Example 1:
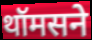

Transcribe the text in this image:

थॉमसने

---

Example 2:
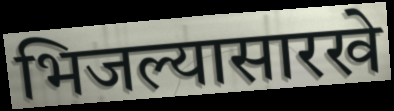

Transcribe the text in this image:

भिजल्यासारखे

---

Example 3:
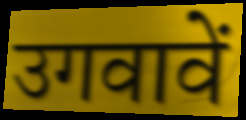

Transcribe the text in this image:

उगवावें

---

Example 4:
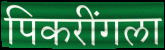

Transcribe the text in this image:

पिकरींगला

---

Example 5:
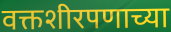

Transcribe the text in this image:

वक्तशीरपणाच्या